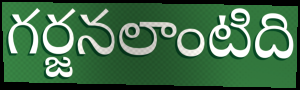
గర్జనలాంటిది